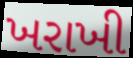
ખરાખી